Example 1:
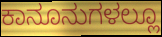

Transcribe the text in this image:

ಕಾನೂನುಗಳಲ್ಲೂ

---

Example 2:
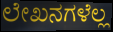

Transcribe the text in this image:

ಲೇಖನಗಳೆಲ್ಲ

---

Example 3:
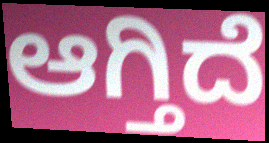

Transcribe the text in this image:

ಆಗ್ತಿದೆ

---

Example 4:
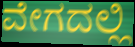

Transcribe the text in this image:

ವೇಗದಲ್ಲಿ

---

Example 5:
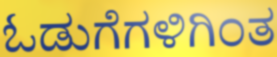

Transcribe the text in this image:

ಓಡುಗೆಗಳಿಗಿಂತ